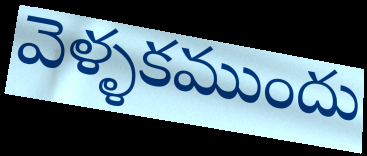
వెళ్ళకముందు